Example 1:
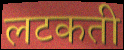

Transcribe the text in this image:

लटकती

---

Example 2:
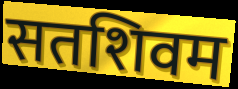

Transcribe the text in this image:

सतशिवम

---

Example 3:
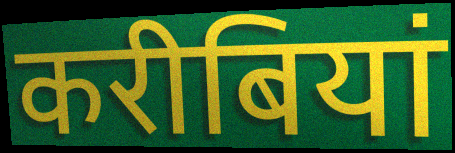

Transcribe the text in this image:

करीबियां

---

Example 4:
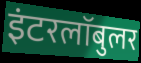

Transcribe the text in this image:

इंटरलॉबुलर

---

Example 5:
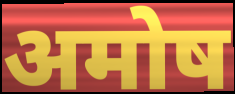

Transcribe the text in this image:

अमोष